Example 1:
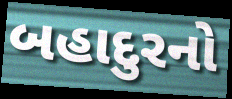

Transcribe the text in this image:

બહાદુરનો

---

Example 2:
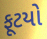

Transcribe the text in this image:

ફૂટયો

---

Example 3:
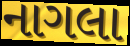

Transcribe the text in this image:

નાગલા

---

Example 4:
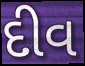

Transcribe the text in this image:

દીવ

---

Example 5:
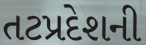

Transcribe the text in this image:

તટપ્રદેશની